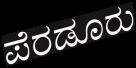
ಪೆರಡೂರು